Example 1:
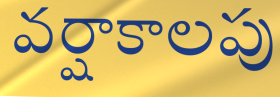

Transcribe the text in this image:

వర్షాకాలపు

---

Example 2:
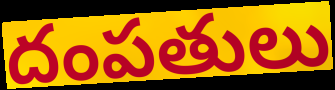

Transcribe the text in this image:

దంపతులు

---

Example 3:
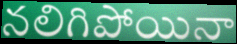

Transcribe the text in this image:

నలిగిపోయినా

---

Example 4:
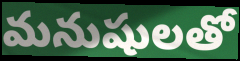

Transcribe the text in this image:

మనుషులతో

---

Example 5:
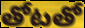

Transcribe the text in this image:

తోటతో